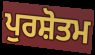
ਪੁਰਸ਼ੋਤਮ